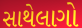
સાથેલાગો